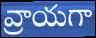
వ్రాయగా